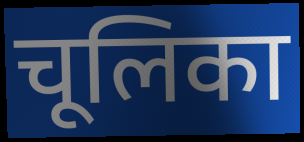
चूलिका